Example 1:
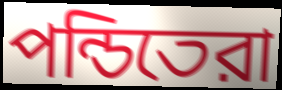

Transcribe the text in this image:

পন্ডিতেরা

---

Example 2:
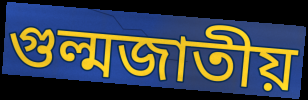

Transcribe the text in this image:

গুল্মজাতীয়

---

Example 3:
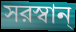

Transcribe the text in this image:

সরস্বান্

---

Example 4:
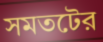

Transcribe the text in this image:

সমতটের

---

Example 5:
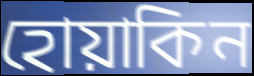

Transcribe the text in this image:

হোয়াকিন